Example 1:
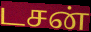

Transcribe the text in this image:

டசன்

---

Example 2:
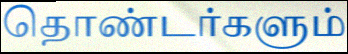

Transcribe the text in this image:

தொண்டர்களும்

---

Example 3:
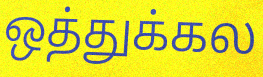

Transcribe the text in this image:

ஒத்துக்கல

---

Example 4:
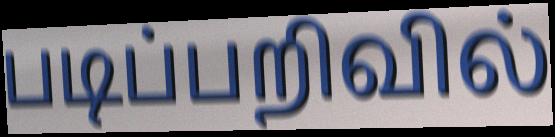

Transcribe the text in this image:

படிப்பறிவில்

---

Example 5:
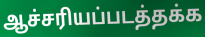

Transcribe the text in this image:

ஆச்சரியப்படத்தக்க